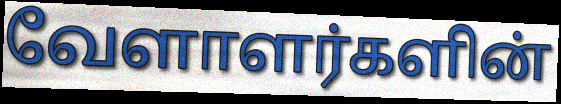
வேளாளர்களின்